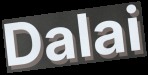
Dalai